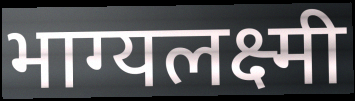
भाग्यलक्ष्मी